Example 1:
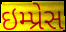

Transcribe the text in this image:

ઇમ્પ્રેસ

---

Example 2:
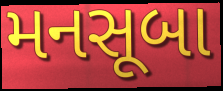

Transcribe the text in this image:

મનસૂબા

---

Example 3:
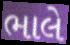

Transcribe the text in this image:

ભાલે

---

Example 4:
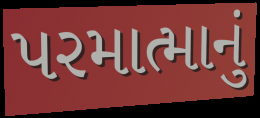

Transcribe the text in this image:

પરમાત્માનું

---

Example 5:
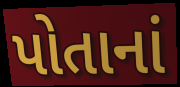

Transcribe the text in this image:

પોતાનાં